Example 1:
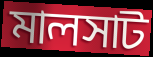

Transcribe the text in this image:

মালসাট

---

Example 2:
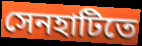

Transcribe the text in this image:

সেনহাটিতে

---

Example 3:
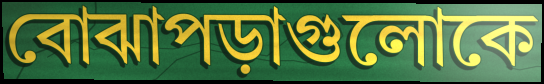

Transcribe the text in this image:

বোঝাপড়াগুলোকে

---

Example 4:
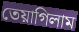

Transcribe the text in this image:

তেয়াগিলাম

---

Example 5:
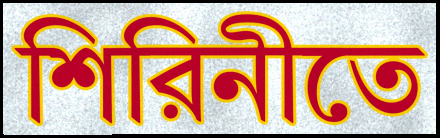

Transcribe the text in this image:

শিরিনীতে